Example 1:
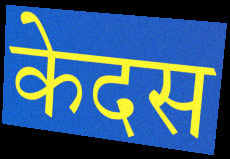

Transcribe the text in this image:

केदस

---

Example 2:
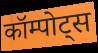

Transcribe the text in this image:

कॉम्पोट्स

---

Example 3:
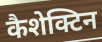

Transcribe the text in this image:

कैशेक्टिन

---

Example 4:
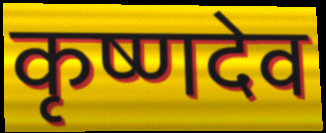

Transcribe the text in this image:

कृष्‍णदेव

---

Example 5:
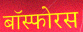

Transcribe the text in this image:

बॉस्फोरस